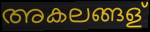
അകലങ്ങള്